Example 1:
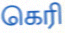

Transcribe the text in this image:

கெரி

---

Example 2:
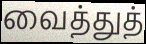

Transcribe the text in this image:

வைத்துத்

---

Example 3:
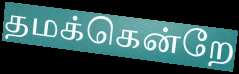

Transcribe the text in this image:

தமக்கென்றே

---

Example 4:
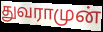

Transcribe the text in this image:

துவராமுன்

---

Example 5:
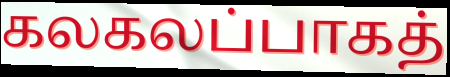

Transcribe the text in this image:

கலகலப்பாகத்